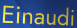
Einaudi